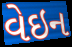
વેઇન